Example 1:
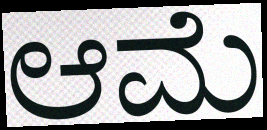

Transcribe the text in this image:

ಆಮೆ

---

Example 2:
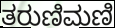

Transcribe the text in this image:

ತರುಣಿಮಣಿ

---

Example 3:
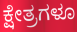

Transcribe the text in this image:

ಕ್ಷೇತ್ರಗಳೂ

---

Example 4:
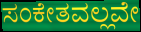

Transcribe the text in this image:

ಸಂಕೇತವಲ್ಲವೇ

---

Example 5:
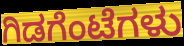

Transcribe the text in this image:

ಗಿಡಗೆಂಟೆಗಳು